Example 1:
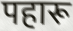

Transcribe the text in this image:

पहारू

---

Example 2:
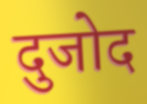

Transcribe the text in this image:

दुजोद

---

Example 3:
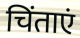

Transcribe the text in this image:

चिंताएं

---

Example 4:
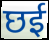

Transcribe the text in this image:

छई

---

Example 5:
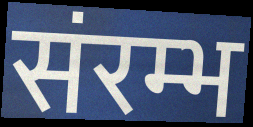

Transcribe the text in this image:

संरम्भ